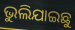
ଭୁଲିଯାଇଛୁ